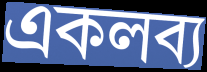
একলব্য